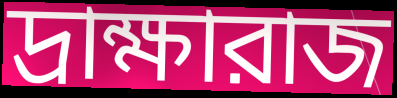
দ্রাক্ষারাজ